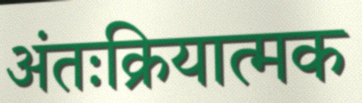
अंतःक्रियात्मक